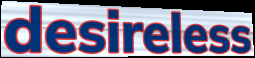
desireless